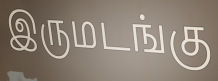
இருமடங்கு